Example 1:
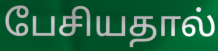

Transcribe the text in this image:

பேசியதால்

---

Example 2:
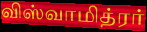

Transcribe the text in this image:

விஸ்வாமித்ரர்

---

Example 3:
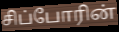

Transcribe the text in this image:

சிப்போரின்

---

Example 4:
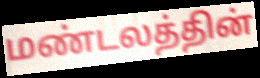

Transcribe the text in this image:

மண்டலத்தின்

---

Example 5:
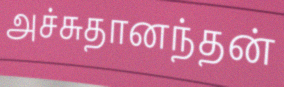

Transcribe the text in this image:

அச்சுதானந்தன்